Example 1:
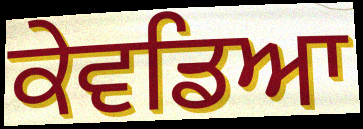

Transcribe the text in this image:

ਕੇਵਡਿਆ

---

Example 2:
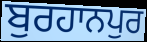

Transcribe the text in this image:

ਬੁਰਹਾਨਪੁਰ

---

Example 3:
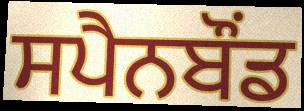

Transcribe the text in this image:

ਸਪੈਨਬੌਂਡ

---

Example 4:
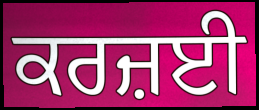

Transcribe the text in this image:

ਕਰਜ਼ਈ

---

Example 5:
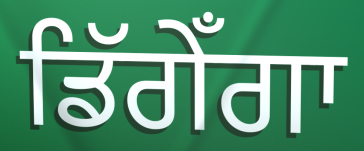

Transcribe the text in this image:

ਡਿੱਗੇਁਗਾ